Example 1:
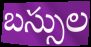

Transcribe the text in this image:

బస్సుల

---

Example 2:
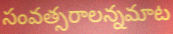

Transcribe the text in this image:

సంవత్సరాలన్నమాట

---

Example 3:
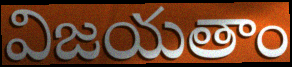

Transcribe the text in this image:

విజయతాం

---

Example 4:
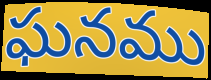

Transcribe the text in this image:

ఘనము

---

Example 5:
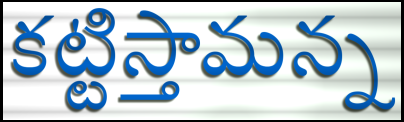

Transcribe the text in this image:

కట్టిస్తామన్న